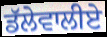
ਡੱਲੇਵਾਲੀਏ